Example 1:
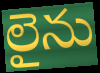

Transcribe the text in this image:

లైను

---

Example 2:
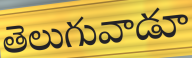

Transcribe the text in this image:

తెలుగువాడూ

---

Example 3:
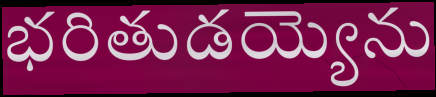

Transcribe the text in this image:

భరితుడయ్యెను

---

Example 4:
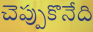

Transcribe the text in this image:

చెప్పుకొనేది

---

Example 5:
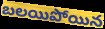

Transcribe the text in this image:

బలయిపోయిన